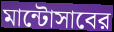
মান্টোসাবের